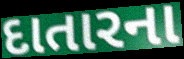
દાતારના